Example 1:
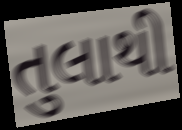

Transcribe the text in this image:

તુલાથી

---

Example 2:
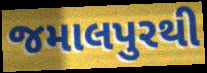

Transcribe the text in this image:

જમાલપુરથી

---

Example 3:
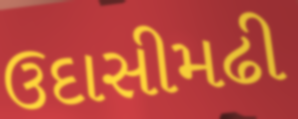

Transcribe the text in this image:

ઉદાસીમઢી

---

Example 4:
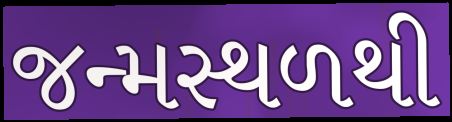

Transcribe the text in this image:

જન્મસ્થળથી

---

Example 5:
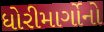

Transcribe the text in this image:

ધોરીમાર્ગોનો